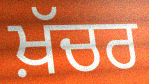
ਖ਼ੱਚਰ